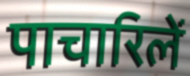
पाचारिलें